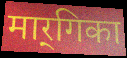
मार्गिका